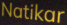
Natikar